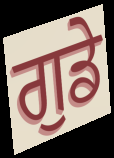
ਗੁਡੇ